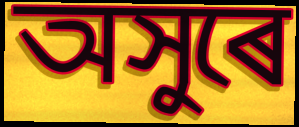
অসুৰে